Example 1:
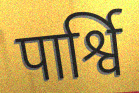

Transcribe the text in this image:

पार्श्वि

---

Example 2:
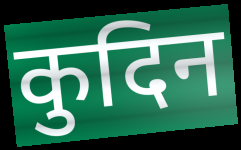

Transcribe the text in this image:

कुदिन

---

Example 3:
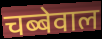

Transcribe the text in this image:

चब्बेवाल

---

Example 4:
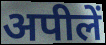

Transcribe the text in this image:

अपीलें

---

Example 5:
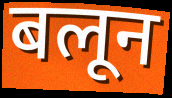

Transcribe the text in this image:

बलून